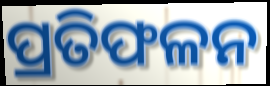
ପ୍ରତିଫଳନ